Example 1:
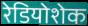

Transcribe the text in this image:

रेडियोशेक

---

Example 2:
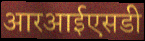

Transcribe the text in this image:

आरआईएसडी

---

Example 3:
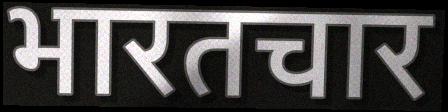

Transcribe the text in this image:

भारतचार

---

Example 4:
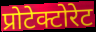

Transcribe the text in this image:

प्रोटेक्टोरेट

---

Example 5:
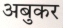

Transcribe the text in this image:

अबुकर